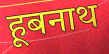
हूबनाथ